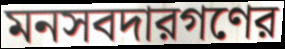
মনসবদারগণের